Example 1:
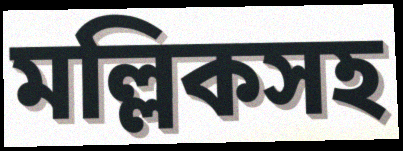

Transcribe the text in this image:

মল্লিকসহ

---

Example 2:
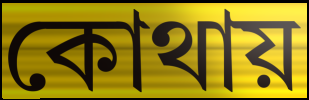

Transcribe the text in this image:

কোথায়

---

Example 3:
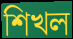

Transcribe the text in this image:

শিখল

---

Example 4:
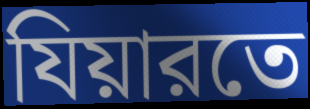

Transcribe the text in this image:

যিয়ারতে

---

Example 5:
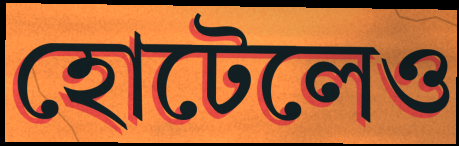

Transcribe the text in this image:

হোটেলেও